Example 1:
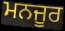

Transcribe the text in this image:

ਮਨਜੂਰ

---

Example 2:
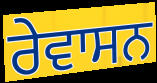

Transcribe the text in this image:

ਰੇਵਾਸਨ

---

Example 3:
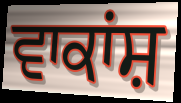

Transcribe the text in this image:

ਵਾਕਾਂਸ਼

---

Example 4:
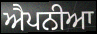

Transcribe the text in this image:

ਐਪਨੀਆ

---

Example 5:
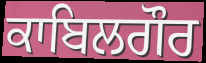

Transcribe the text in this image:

ਕਾਬਿਲਗੌਰ